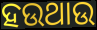
ହଉଥାଉ